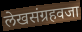
लेखसंग्रहवजा